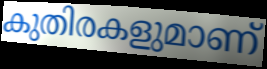
കുതിരകളുമാണ്